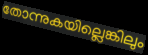
തോന്നുകയില്ലെങ്കിലും